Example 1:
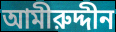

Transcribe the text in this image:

আমীরুদ্দীন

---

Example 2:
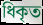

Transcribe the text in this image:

ধিকৃত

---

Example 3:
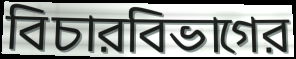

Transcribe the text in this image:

বিচারবিভাগের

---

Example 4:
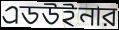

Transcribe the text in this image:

এডউইনার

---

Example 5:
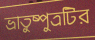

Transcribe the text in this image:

ভ্রাতুষ্পুত্রটির